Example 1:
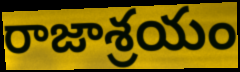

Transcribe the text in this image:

రాజాశ్రయం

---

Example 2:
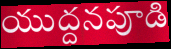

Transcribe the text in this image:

యుద్దనపూడి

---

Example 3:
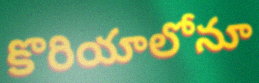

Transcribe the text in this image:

కొరియాలోనూ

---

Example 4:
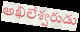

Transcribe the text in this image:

అఖిలేశ్వరుడు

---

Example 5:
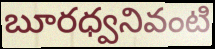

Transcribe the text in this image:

బూరధ్వనివంటి